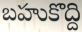
బహుకొద్ది